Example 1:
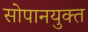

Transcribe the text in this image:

सोपानयुक्त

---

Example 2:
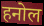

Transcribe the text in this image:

हनोल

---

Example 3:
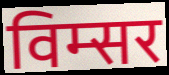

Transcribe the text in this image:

विम्सर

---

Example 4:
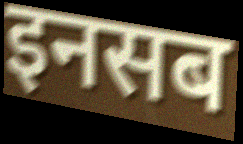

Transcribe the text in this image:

इनसब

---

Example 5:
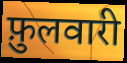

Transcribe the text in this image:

फ़ुलवारी